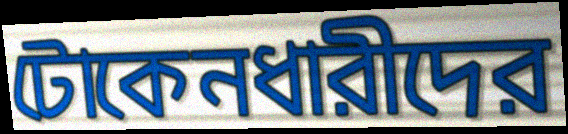
টোকেনধারীদের